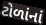
ટોળાંનાં